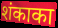
शंकाका